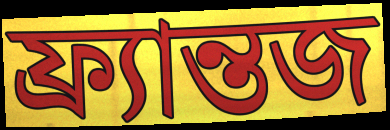
ফ্র্যান্তজ